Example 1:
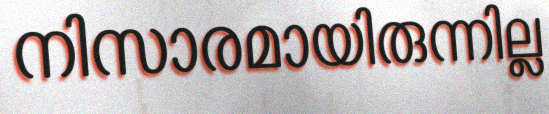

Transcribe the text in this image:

നിസാരമായിരുന്നില്ല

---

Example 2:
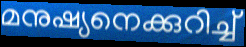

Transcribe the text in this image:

മനുഷ്യനെക്കുറിച്ച്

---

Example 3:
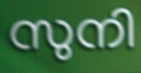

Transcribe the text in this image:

സുനി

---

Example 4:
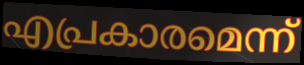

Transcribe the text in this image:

എപ്രകാരമെന്ന്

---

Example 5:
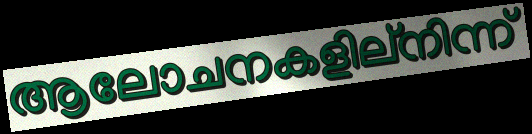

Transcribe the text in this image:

ആലോചനകളില്നിന്ന്